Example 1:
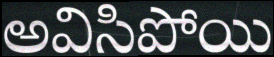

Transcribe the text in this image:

అవిసిపోయి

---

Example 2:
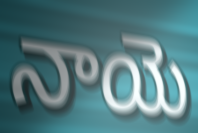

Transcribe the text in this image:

నాయె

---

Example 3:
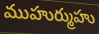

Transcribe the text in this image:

ముహుర్ముహు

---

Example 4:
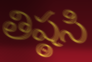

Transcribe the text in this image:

తిష్ఠసి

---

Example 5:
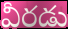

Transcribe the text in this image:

వీరడు